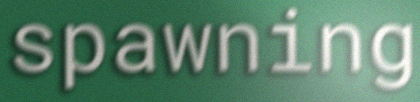
spawning